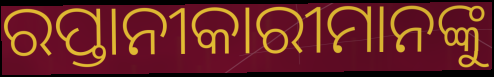
ରପ୍ତାନୀକାରୀମାନଙ୍କୁ